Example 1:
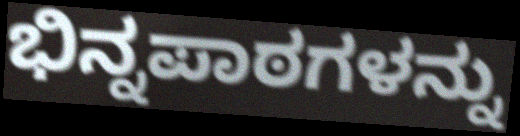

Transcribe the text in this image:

ಭಿನ್ನಪಾಠಗಳನ್ನು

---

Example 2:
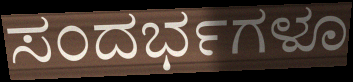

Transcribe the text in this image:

ಸಂದರ್ಭಗಳೂ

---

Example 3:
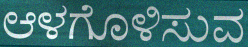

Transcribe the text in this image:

ಆಳಗೊಳಿಸುವ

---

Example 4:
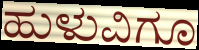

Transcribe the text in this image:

ಹುಳುವಿಗೂ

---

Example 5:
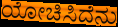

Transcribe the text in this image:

ಯೋಚಿಸಿದೆನು